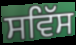
ਸਵਿੱਸ